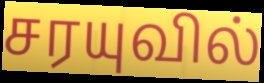
சரயுவில்